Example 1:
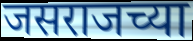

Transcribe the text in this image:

जसराजच्या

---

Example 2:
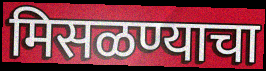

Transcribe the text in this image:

मिसळण्याचा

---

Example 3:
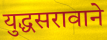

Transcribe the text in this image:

युद्धसरावाने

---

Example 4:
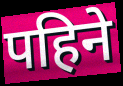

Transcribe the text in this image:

पहिने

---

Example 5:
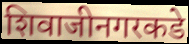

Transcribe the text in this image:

शिवाजीनगरकडे